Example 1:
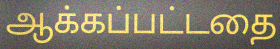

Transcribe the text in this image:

ஆக்கப்பட்டதை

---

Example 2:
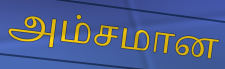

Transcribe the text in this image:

அம்சமான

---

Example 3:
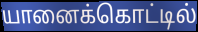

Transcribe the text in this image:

யானைக்கொட்டில்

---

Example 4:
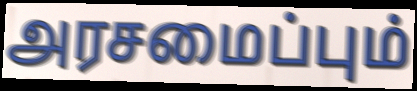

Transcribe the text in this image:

அரசமைப்பும்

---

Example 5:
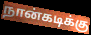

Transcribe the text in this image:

நான்கடிக்கு